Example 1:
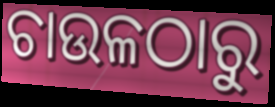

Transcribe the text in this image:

ଚାଉଳଠାରୁ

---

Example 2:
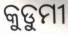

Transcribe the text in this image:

କୁଡୁମୀ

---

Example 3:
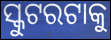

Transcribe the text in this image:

ସ୍କୁଟରଟାକୁ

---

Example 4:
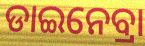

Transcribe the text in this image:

ଡାଇନେବ୍ରା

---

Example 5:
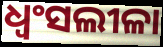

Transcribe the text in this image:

ଧ୍ବଂସଲୀଳା